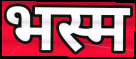
भस्म